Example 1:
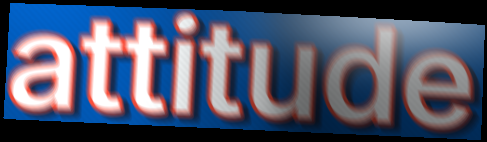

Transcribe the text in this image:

attitude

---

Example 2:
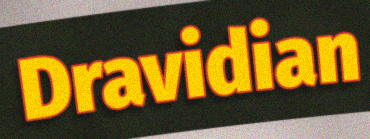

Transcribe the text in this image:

Dravidian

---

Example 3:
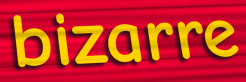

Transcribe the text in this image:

bizarre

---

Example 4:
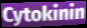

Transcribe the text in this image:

Cytokinin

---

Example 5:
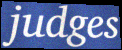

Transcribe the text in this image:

judges